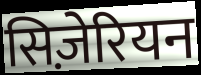
सिज़ेरियन